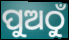
ପୁଅଠୁଁ